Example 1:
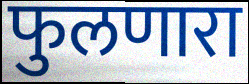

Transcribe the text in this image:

फुलणारा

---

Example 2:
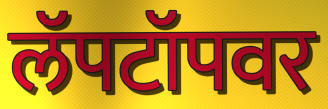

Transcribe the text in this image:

लॅपटॉपवर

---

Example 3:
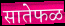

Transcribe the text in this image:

सातेफळ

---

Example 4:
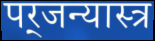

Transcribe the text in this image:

पर्जन्यास्त्र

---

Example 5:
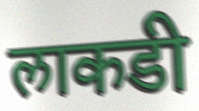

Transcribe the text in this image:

लाकडी